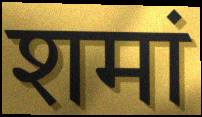
शमां